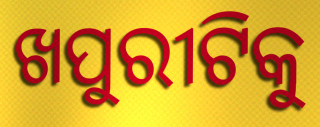
ଖପୁରୀଟିକୁ